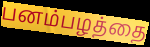
பனம்பழத்தை